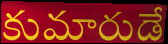
కుమారుడే